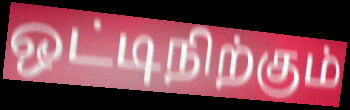
ஒட்டிநிற்கும்